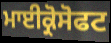
ਮਾਈਕ੍ਰੋਸੋਫਟ